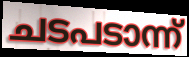
ചടപടാന്ന്